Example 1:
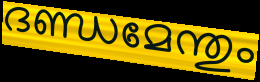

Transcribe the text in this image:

ദണ്ഡമേന്തും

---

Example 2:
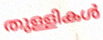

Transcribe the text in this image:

തുള്ളികൾ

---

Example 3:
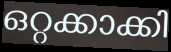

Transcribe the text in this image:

ഒറ്റക്കാക്കി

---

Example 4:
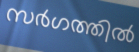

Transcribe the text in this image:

സർഗത്തിൽ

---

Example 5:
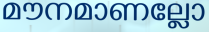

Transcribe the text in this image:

മൗനമാണല്ലോ